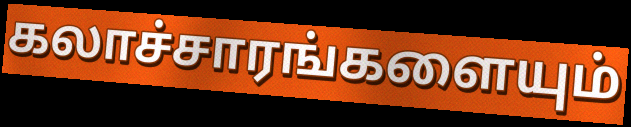
கலாச்சாரங்களையும்